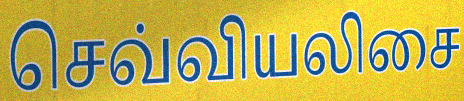
செவ்வியலிசை